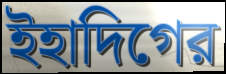
ইহাদিগের